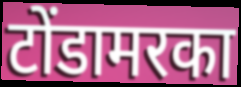
टोंडामरका